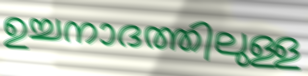
ഉച്ചനാദത്തിലുള്ള